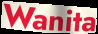
Wanita